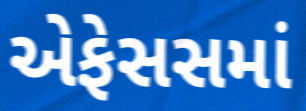
એફેસસમાં